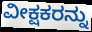
ವೀಕ್ಷಕರನ್ನು